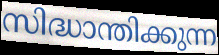
സിദ്ധാന്തിക്കുന്ന